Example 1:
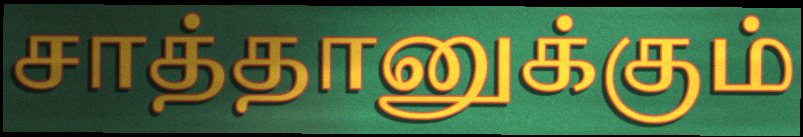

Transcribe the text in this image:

சாத்தானுக்கும்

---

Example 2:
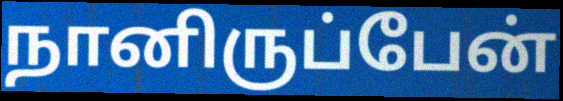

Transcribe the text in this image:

நானிருப்பேன்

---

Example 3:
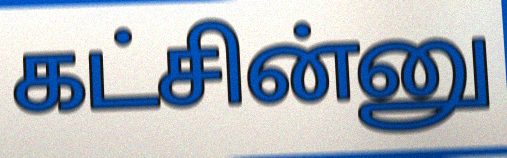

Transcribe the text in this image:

கட்சின்னு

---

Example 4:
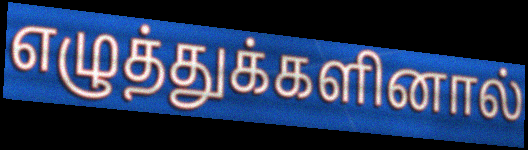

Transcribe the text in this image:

எழுத்துக்களினால்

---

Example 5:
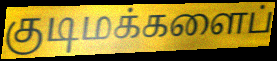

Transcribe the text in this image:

குடிமக்களைப்